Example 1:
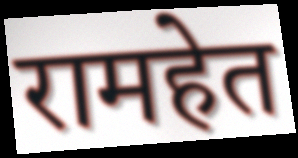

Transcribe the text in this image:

रामहेत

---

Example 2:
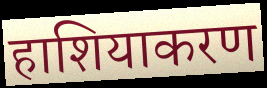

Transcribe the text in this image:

हाशियाकरण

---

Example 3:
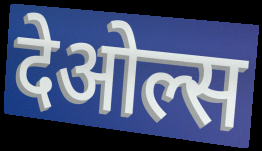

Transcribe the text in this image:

देओल्स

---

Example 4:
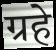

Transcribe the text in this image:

ग्रहे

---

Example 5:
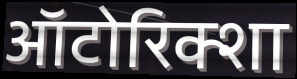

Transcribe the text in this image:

ऑटोरिक्शा